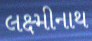
લક્ષ્મીનાથ